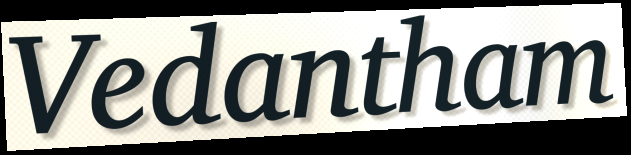
Vedantham